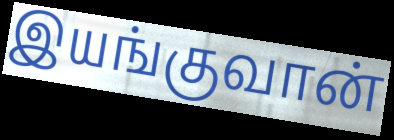
இயங்குவான்